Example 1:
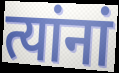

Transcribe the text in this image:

त्यांनां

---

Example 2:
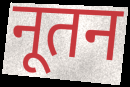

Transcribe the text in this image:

नूतन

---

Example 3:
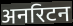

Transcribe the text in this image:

अनरिटन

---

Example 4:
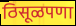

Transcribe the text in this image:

ठिसूळपणा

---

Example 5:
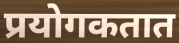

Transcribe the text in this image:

प्रयोगकतात